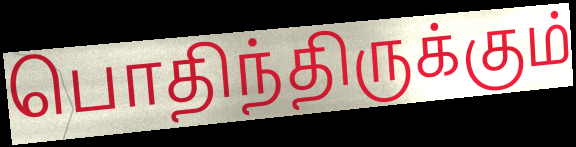
பொதிந்திருக்கும்